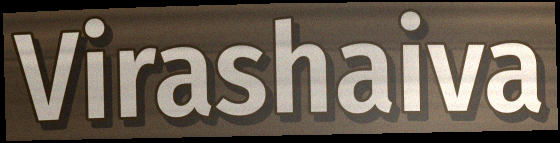
Virashaiva